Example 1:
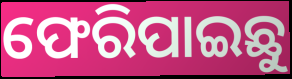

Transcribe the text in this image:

ଫେରିପାଇଛୁ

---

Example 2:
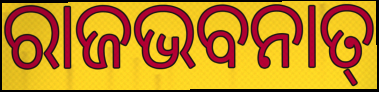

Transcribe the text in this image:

ରାଜଭବନାତ୍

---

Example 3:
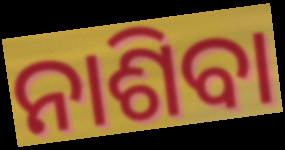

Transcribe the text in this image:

ନାଶିବା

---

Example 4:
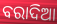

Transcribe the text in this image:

ବରାଦିଆ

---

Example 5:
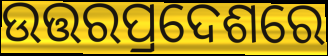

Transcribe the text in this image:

ଉତ୍ତରପ୍ରଦେଶରେ